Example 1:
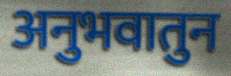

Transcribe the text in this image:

अनुभवातुन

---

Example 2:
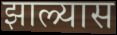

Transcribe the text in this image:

झाल्यास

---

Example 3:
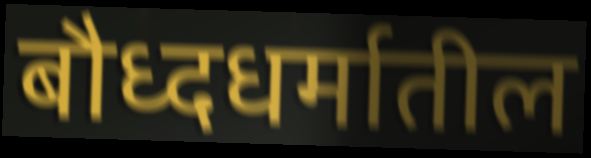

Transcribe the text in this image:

बौध्दधर्मातील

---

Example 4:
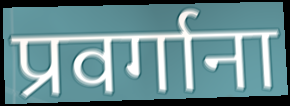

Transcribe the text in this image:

प्रवर्गाना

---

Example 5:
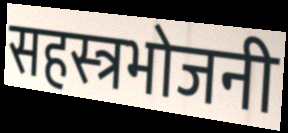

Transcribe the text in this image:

सहस्त्रभोजनी